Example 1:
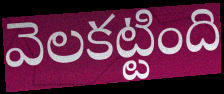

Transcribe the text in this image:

వెలకట్టింది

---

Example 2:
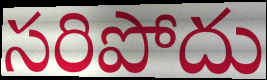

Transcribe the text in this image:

సరిపోదు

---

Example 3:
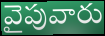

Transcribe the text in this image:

వైపువారు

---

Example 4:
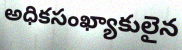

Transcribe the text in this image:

అధికసంఖ్యాకులైన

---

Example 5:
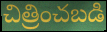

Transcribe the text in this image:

చిత్రించబడి